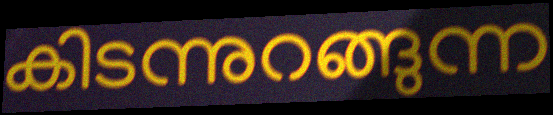
കിടന്നുറങ്ങുന്ന